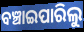
ବଞ୍ଚାଇପାରିଲୁ